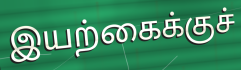
இயற்கைக்குச்